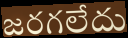
జరగలేదు